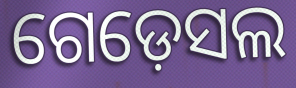
ଗେଡ଼େସଲ